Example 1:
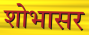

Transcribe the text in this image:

शोभासर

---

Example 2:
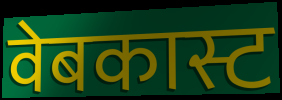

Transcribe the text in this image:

वेबकास्ट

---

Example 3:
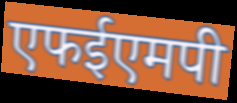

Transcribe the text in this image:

एफईएमपी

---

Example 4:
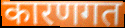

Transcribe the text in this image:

कारणगत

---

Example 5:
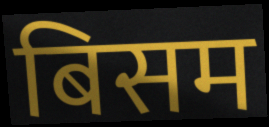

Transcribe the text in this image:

बिसम